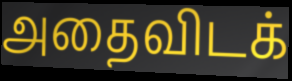
அதைவிடக்